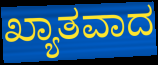
ಖ್ಯಾತವಾದ